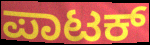
ಪಾಟಕ್